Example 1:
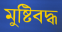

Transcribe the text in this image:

মুষ্টিবদ্ধ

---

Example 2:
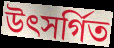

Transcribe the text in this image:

উৎসর্গিত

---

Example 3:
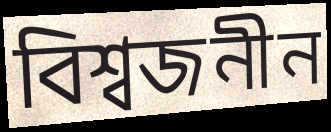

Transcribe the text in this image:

বিশ্বজনীন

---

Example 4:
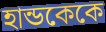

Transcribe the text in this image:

হান্ডকেকে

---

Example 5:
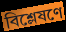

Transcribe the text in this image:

বিশ্লেষণে